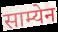
साम्येन